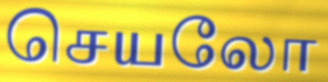
செயலோ